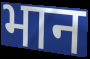
भान